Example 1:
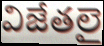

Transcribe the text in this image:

విజేతలై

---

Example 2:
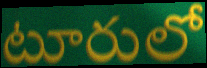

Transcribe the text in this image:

టూరులో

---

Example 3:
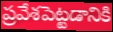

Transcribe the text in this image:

ప్రవేశపెట్టడానికి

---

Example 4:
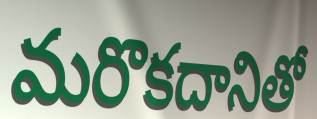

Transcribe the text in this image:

మరొకదానితో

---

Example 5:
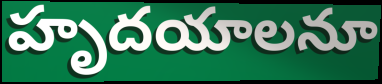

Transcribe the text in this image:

హృదయాలనూ